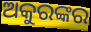
ଅକୁରଙ୍କର